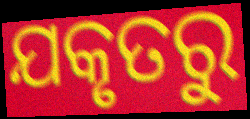
ଯକୃତରୁ